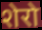
शेरो